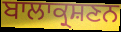
ਬਾਲਾਕ੍ਰਸ਼ਣਨ